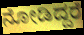
ನೋಡಿದ್ದರೆ